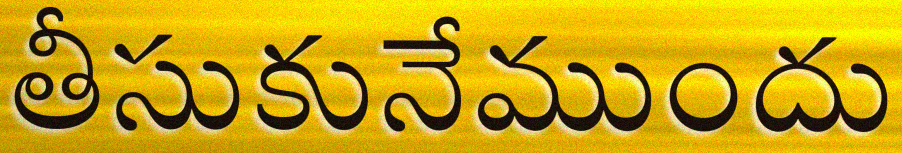
తీసుకునేముందు